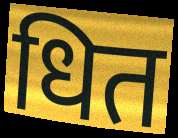
धित